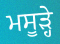
ਮਸੂੜ੍ਹੇ